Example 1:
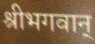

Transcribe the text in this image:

श्रीभगवान्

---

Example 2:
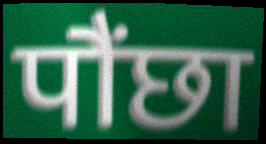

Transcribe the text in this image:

पौंछा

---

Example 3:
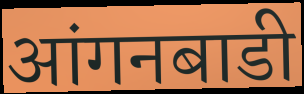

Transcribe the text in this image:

आंगनबाडी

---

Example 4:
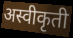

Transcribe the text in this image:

अस्वीकृती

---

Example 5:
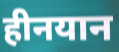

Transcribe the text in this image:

हीनयान